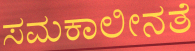
ಸಮಕಾಲೀನತೆ